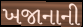
ખજાનાની